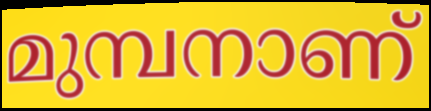
മുമ്പനാണ്